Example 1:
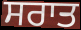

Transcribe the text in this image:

ਸਰਾਤ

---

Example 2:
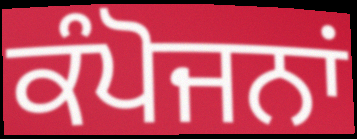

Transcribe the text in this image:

ਕੰਪੋਜਨਾਂ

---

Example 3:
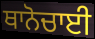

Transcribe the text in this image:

ਥਾਨੋਚਾਈ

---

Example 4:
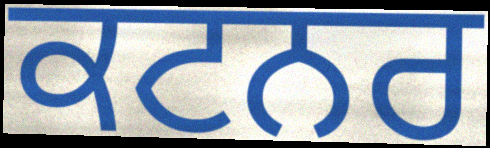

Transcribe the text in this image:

ਕਟਨਰ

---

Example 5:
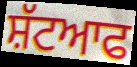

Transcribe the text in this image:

ਸ਼ੱਟਆਫ